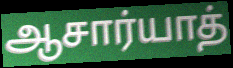
ஆசார்யாத்